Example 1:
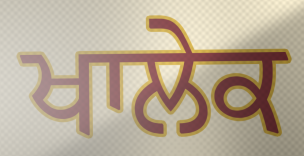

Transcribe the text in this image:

ਖਾਲੇਕ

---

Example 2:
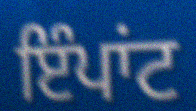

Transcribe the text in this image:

ਇੰਪਾਂਟ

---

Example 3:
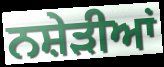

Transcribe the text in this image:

ਨਸ਼ੇੜੀਆਂ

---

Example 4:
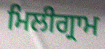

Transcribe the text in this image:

ਮਿਲੀਗ੍ਰਾਮ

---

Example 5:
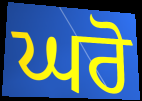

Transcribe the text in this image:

ਘਰੋ